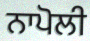
ਨਾਪੋਲੀ